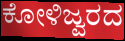
ಕೋಳಿಜ್ವರದ